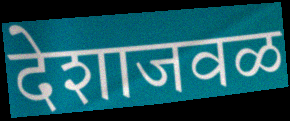
देशाजवळ